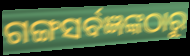
ଗଙ୍ଗସର୍ବଜ୍ଞଙ୍କଠାରୁ